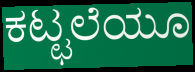
ಕಟ್ಟಲೆಯೂ